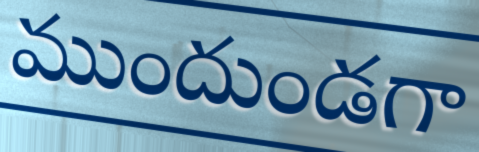
ముందుండగా